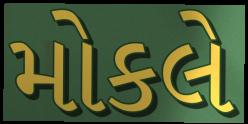
મોકલે